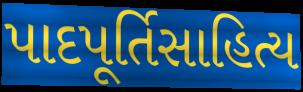
પાદપૂર્તિસાહિત્ય